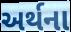
અર્થના